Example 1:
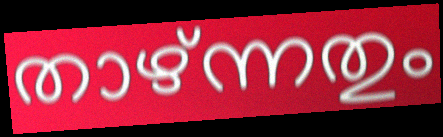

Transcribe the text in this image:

താഴ്ന്നതും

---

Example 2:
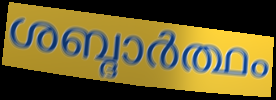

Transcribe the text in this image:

ശബ്ദാർത്ഥം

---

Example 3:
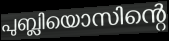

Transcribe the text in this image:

പുബ്ലിയൊസിന്റെ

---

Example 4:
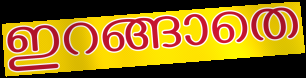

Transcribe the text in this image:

ഇറങ്ങാതെ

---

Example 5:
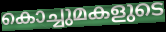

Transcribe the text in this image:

കൊച്ചുമകളുടെ